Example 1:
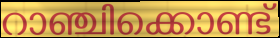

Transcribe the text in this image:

റാഞ്ചിക്കൊണ്ട്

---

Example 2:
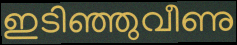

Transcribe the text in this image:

ഇടിഞ്ഞുവീണു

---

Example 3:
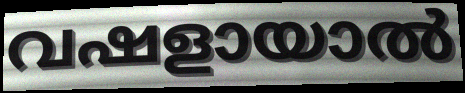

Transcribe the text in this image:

വഷളായാൽ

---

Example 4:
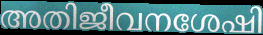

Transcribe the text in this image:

അതിജീവനശേഷി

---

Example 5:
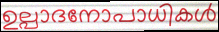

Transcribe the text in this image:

ഉല്പാദനോപാധികൾ